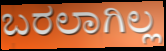
ಬರಲಾಗಿಲ್ಲ